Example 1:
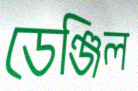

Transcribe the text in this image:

ডেঞ্জিল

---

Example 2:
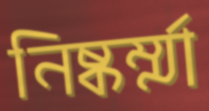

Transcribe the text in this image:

নিষ্কর্ম্মা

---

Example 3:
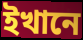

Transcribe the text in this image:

ইখানে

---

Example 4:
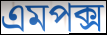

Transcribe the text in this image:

এমপক্স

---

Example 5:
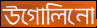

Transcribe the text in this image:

উগোলিনো